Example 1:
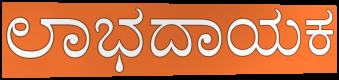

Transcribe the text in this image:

ಲಾಭದಾಯಕ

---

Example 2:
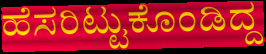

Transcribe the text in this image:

ಹೆಸರಿಟ್ಟುಕೊಂಡಿದ್ದ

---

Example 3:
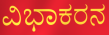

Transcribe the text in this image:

ವಿಭಾಕರನ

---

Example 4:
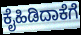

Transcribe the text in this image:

ಕೈಹಿಡಿದಾಕೆಗೆ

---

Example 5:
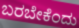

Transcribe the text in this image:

ಬರಬೇಕೆಂದು